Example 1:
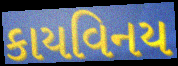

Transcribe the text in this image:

કાયવિનય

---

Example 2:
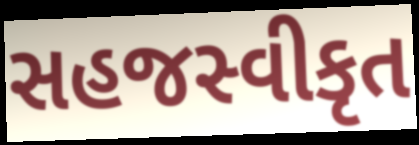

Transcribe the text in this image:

સહજસ્વીકૃત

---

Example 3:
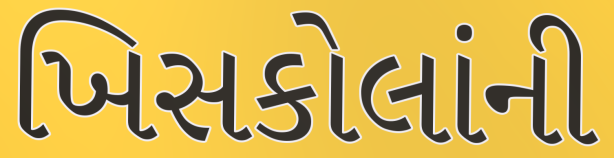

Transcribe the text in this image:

ખિસકોલાંની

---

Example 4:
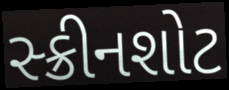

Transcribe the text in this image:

સ્ક્રીનશોટ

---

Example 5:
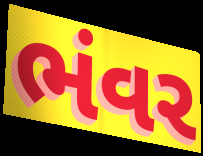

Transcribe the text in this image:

ભંવર